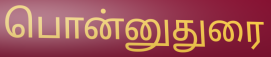
பொன்னுதுரை